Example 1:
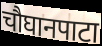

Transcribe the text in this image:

चौघानपाटा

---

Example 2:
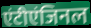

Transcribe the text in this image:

एंटीएंजिनल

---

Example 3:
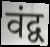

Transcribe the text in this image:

वंद्व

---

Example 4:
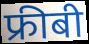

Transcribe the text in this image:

फ्रीबी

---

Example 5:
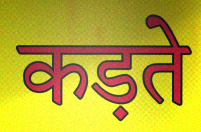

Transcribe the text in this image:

कड़ते